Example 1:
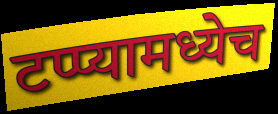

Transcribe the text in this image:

टप्प्यामध्येच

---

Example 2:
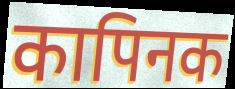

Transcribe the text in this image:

कापिनक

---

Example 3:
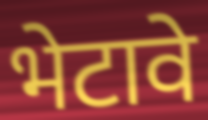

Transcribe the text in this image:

भेटावे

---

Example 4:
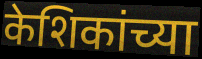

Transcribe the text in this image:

केशिकांच्या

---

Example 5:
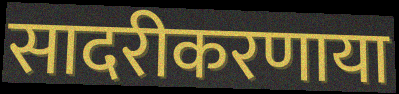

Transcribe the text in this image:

सादरीकरणाया